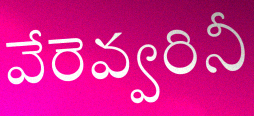
వేరెవ్వరినీ